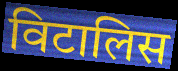
विटालिस